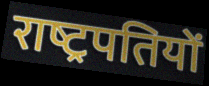
राष्ट्रपतियों